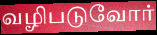
வழிபடுவோர்